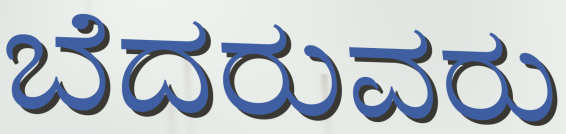
ಬೆದರುವರು